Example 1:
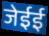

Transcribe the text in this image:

जेईई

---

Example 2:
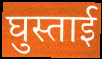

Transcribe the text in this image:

घुस्ताई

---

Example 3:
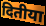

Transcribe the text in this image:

दितीया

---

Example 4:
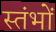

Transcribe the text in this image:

स्तंभों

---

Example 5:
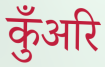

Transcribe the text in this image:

कुँअरि